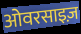
ओवरसाइज़